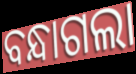
ବନ୍ଧାଗଲା